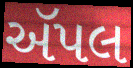
ઍપલ